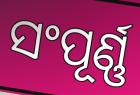
ସଂପୂର୍ଣ୍ଣ